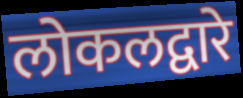
लोकलद्वारे